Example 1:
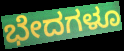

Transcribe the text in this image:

ಭೇದಗಳೂ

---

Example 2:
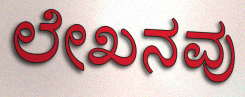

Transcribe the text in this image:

ಲೇಖನವು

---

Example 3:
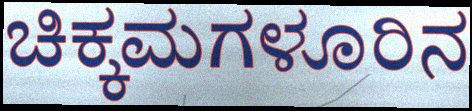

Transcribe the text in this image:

ಚಿಕ್ಕಮಗಳೂರಿನ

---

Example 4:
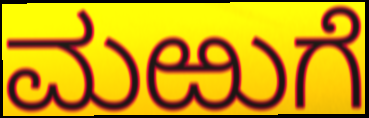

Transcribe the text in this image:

ಮಱುಗೆ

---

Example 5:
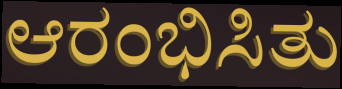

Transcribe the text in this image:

ಆರಂಭಿಸಿತು